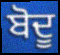
ਬੋਦੂ